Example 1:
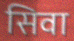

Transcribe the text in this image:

सिवा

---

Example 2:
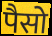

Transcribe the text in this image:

पैसो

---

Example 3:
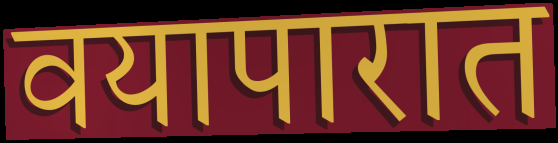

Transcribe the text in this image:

वयापारात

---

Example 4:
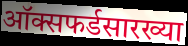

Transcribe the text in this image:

ऑक्सफर्डसारख्या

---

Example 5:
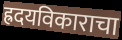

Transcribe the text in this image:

ह्रदयविकाराचा